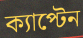
ক্যাপ্টেন